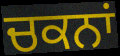
ਚਕਨਾਂ